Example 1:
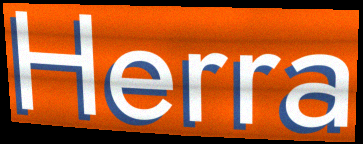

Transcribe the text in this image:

Herra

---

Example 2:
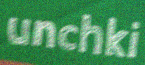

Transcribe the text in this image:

unchki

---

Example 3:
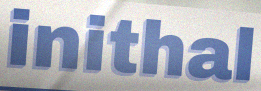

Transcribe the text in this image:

inithal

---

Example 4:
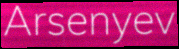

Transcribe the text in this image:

Arsenyev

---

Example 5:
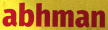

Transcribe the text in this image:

abhman